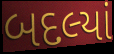
બદલ્યાં